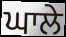
ਘਾਲੇ